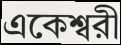
একেশ্বরী